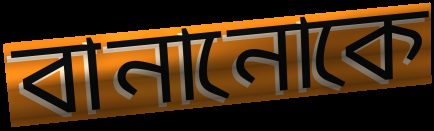
বানানোকে